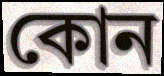
কোন